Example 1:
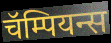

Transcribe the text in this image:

चॅम्पियन्स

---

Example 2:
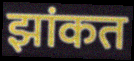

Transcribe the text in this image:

झांकत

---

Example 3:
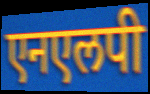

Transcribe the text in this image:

एनएलपी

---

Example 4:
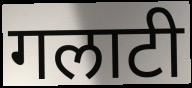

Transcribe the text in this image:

गलाटी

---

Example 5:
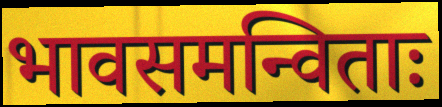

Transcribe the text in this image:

भावसमन्विताः